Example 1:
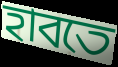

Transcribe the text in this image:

হাবতে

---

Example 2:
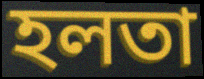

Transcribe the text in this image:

হলতা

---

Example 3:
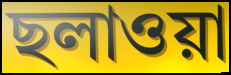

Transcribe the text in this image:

ছলাওয়া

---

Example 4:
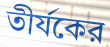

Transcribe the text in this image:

তীর্যকের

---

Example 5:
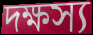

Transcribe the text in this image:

দক্ষস্য